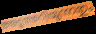
അടുത്തറിയുന്നതും